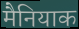
मैनियाक